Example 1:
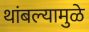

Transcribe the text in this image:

थांबल्यामुळे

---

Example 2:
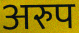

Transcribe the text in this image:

अरुप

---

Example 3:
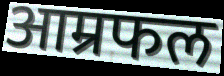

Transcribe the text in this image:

आम्रफल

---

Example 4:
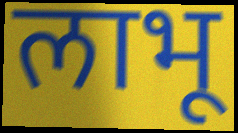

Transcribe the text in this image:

लाभू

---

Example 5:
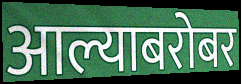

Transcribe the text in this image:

आल्याबरोबर